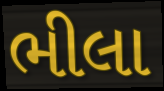
ભીલા